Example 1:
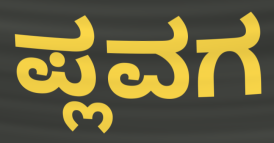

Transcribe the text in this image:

ಪ್ಲವಗ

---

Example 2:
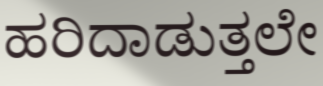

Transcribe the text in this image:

ಹರಿದಾಡುತ್ತಲೇ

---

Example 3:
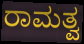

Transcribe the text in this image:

ರಾಮತ್ವ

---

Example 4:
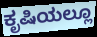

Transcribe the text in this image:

ಕೃಷಿಯಲ್ಲೂ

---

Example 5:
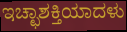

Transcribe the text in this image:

ಇಚ್ಛಾಶಕ್ತಿಯಾದಳು